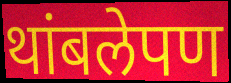
थांबलेपण